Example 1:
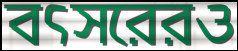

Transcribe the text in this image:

বৎসরেরও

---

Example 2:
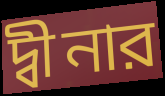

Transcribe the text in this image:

দ্বীনার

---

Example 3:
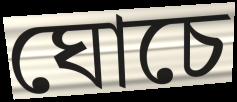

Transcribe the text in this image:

ঘোচে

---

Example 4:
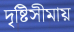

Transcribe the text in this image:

দৃষ্টিসীমায়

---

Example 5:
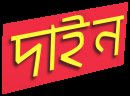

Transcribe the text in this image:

দাইন